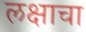
लक्षाचा